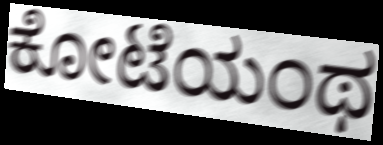
ಕೋಟೆಯಂಥ